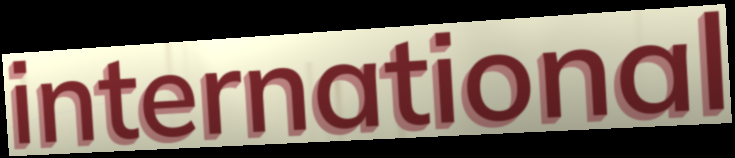
international